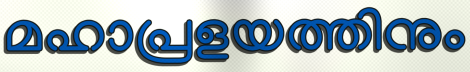
മഹാപ്രളയത്തിനും